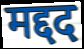
मद्दद